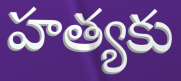
హత్యకు